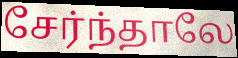
சேர்ந்தாலே